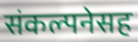
संकल्पनेसह